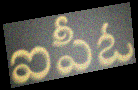
ఐపీఓ